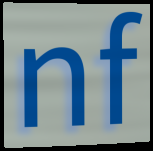
nf